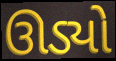
ઊડ્યો